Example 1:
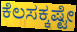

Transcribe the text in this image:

ಕೆಲಸಕ್ಕಷ್ಟೇ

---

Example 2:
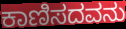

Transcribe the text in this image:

ಕಾಣಿಸದವನು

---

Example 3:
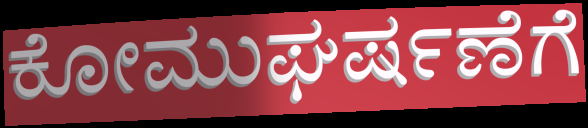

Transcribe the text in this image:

ಕೋಮುಘರ್ಷಣೆಗೆ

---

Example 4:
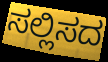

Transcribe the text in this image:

ಸಲ್ಲಿಸದ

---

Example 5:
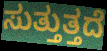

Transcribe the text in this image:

ಸುತ್ತುತ್ತದೆ